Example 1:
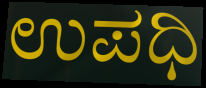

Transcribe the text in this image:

ಉಪಧಿ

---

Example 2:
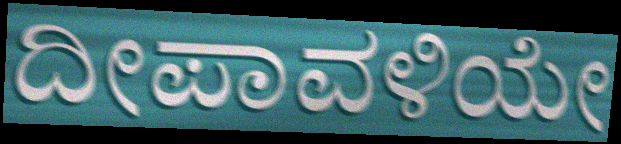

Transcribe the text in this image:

ದೀಪಾವಳಿಯೇ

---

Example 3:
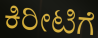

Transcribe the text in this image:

ಕಿರೀಟಿಗೆ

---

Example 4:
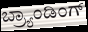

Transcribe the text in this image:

ಬ್ರ್ಯಾಂಡಿಂಗ್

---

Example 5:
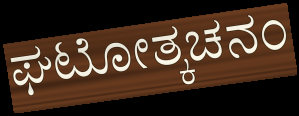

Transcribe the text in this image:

ಘಟೋತ್ಕಚನಂ